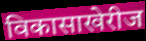
विकासाखेरीज